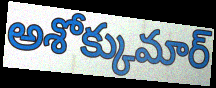
అశోక్కుమార్